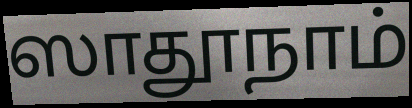
ஸாதூநாம்